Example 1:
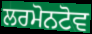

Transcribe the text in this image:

ਲਰਮੋਨਟੋਵ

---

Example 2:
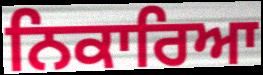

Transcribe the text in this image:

ਨਿਕਾਰਿਆ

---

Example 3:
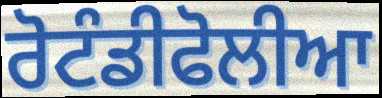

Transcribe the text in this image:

ਰੋਟੰਡੀਫੋਲੀਆ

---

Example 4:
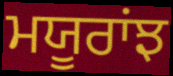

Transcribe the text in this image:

ਮਯੂਰਾਂਝ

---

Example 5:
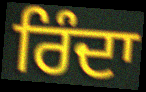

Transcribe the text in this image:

ਰਿੰਦਾ